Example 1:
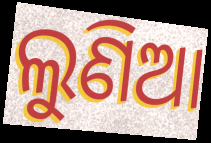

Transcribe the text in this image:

ଲୁଣିଆ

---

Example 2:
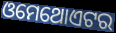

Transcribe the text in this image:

ଓମେଥୋଏଟର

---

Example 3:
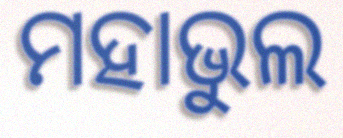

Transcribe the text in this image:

ମହାଭୁଲ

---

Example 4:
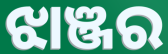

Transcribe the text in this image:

ଝାଞ୍ଜର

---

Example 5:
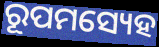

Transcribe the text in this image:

ରୂପମସ୍ୟେହ